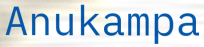
Anukampa